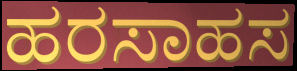
ಹರಸಾಹಸ